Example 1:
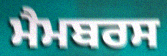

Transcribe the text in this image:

ਮੈਮਬਰਸ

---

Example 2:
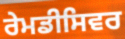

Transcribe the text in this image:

ਰੇਮਡੀਸਿਵਰ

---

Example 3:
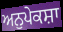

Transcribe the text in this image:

ਅਨੁਪੇਕਸ਼ਾ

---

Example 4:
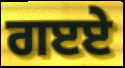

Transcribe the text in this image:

ਗੲਏ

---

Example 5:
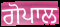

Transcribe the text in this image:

ਗੋਪਾਲ